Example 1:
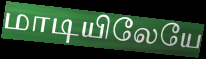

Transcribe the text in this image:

மாடியிலேயே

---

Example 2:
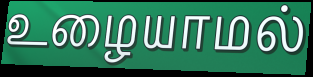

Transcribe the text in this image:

உழையாமல்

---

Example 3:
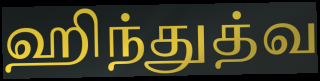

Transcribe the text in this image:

ஹிந்துத்வ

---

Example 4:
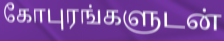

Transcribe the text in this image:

கோபுரங்களுடன்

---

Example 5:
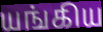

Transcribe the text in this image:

யங்கிய